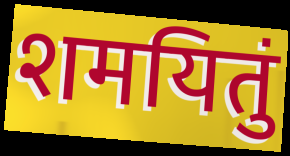
शमयितुं